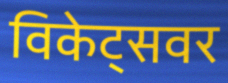
विकेट्सवर